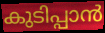
കുടിപ്പാൻ